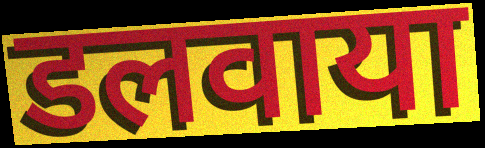
डलवाया